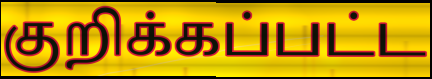
குறிக்கப்பட்ட